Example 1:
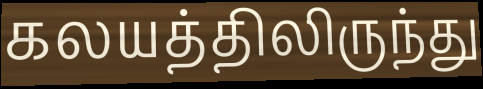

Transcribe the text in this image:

கலயத்திலிருந்து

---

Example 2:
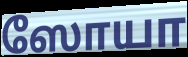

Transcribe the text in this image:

ஸோயா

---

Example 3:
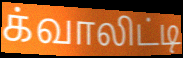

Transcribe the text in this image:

க்வாலிட்டி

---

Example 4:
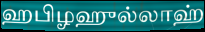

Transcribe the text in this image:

ஹபிழஹுல்லாஹ்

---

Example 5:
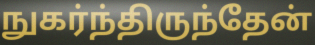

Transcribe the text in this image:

நுகர்ந்திருந்தேன்